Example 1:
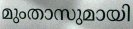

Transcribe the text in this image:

മുംതാസുമായി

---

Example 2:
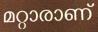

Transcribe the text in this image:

മറ്റാരാണ്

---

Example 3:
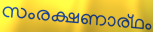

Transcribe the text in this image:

സംരക്ഷണാര്ഥം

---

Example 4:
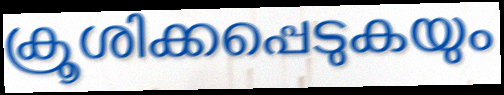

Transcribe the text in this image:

ക്രൂശിക്കപ്പെടുകയും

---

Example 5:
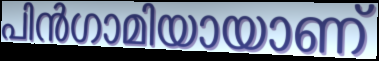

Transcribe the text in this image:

പിൻഗാമിയായാണ്